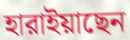
হারাইয়াছেন